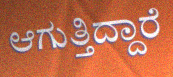
ಆಗುತ್ತಿದ್ದಾರೆ